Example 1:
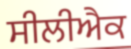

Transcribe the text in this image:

ਸੀਲੀਐਕ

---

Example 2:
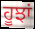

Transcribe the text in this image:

ਹੂਝਾਂ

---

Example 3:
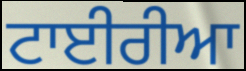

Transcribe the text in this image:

ਟਾਈਰੀਆ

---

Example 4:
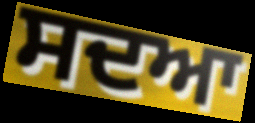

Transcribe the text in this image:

ਸਦਆ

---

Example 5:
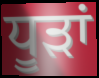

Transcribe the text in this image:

ਧੂੜਾਂ